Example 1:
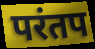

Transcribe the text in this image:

परंतप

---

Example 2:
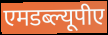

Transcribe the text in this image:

एमडब्ल्यूपीए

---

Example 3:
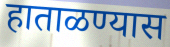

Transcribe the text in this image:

हाताळण्यास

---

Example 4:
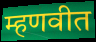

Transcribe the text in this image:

म्हणवीत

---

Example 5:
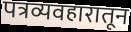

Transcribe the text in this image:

पत्रव्यवहारातून